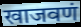
खाजवणं